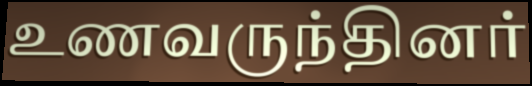
உணவருந்தினர்